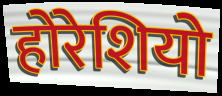
होरेशियो